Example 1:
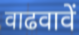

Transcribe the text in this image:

वाढवावें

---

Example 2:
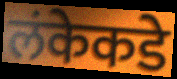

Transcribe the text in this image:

लंकेकडे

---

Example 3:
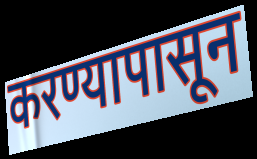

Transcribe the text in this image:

करण्यापासून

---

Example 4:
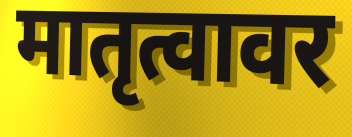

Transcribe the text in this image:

मातृत्वावर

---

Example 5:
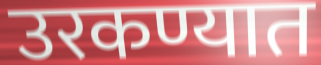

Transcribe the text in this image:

उरकण्यात